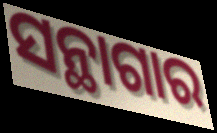
ସନ୍ଥାଗାର